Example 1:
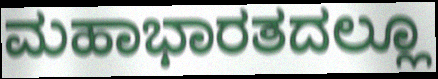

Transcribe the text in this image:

ಮಹಾಭಾರತದಲ್ಲೂ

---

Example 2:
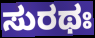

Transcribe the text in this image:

ಸುರಥಃ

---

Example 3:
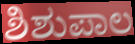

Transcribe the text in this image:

ಶಿಶುಪಾಲ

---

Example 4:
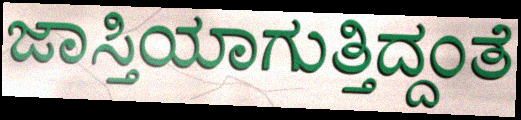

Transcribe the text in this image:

ಜಾಸ್ತಿಯಾಗುತ್ತಿದ್ದಂತೆ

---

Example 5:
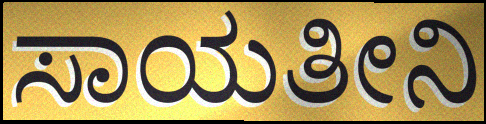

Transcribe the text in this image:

ಸಾಯತೀನಿ